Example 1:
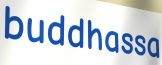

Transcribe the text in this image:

buddhassa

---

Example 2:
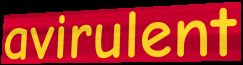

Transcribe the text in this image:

avirulent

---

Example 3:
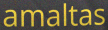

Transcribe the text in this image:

amaltas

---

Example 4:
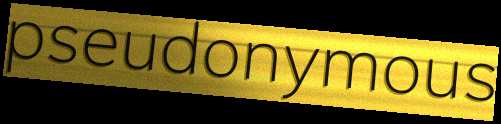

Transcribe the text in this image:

pseudonymous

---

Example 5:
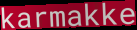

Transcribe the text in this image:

karmakke